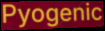
Pyogenic